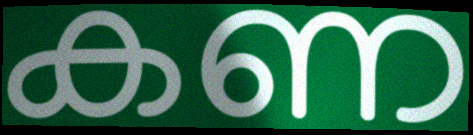
കണ